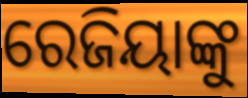
ରେଜିୟାଙ୍କୁ